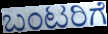
ಬಂಟರಿಗೆ